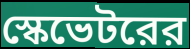
স্কেভেটরের